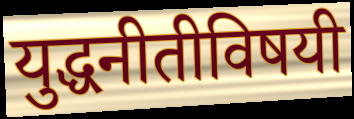
युद्धनीतीविषयी